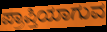
ಪ್ರಾಪ್ತಿಯಾಗುವ